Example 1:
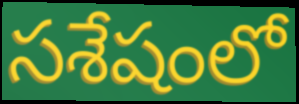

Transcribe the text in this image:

సశేషంలో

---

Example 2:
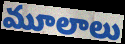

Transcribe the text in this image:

మూలాలు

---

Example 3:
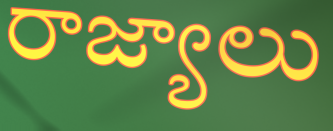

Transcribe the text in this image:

రాజ్యాలు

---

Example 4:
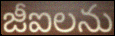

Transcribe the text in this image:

జీఐలను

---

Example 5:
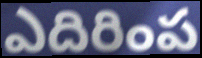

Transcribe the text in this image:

ఎదిరింప